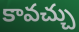
కావచ్చు